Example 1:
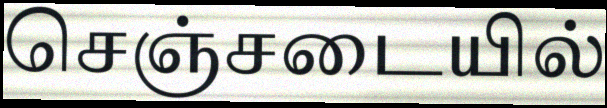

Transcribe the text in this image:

செஞ்சடையில்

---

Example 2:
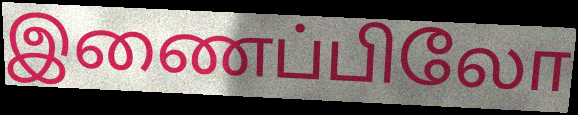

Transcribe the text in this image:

இணைப்பிலோ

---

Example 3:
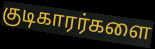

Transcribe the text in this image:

குடிகாரர்களை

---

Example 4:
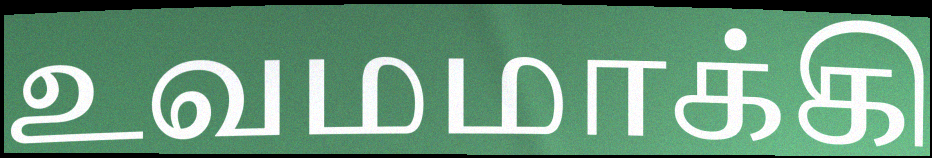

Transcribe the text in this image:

உவமமாக்கி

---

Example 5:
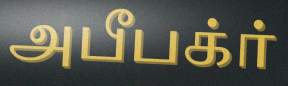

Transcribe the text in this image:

அபீபக்ர்